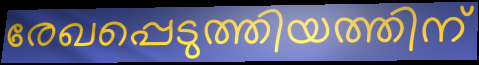
രേഖപ്പെടുത്തിയത്തിന്